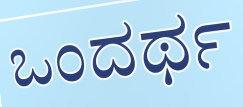
ಒಂದರ್ಥ